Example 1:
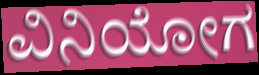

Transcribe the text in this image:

ವಿನಿಯೋಗ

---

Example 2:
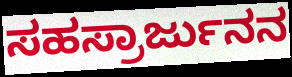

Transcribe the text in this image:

ಸಹಸ್ರಾರ್ಜುನನ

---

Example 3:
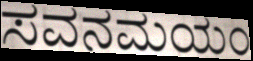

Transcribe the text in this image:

ಸವನಮಯಂ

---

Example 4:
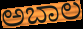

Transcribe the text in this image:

ಅಬಾಲ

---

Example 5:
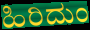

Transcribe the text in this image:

ಹಿರಿದುಂ